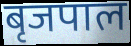
बृजपाल